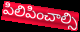
పిలిపించాల్సి